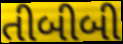
તીબીબી